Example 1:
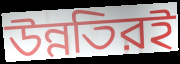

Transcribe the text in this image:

উন্নতিরই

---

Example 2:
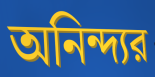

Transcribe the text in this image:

অনিন্দ্যর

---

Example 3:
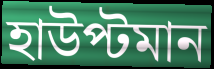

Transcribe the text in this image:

হাউপ্টমান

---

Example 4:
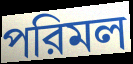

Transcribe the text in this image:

পরিমল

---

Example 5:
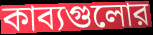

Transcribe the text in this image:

কাব্যগুলোর